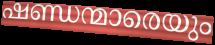
ഷണ്ഡന്മാരെയും